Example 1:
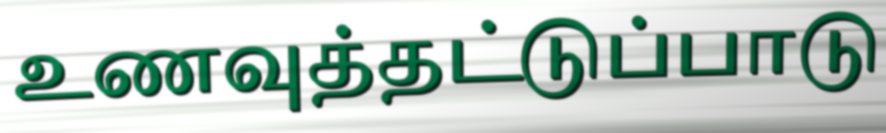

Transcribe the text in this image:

உணவுத்தட்டுப்பாடு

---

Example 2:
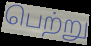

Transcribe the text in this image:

பெற்று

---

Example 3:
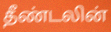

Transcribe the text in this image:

தீண்டலின்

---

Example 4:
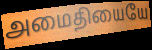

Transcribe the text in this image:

அமைதியையே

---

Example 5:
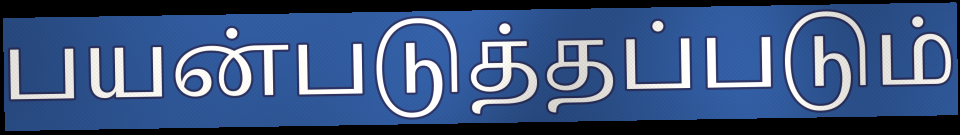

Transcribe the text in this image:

பயன்படுத்தப்படும்